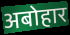
अबोहार